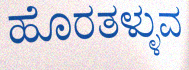
ಹೊರತಳ್ಳುವ